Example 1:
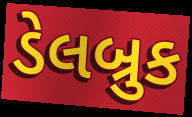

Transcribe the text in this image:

ડેલબ્રુક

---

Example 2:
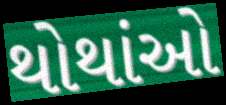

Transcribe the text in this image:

થોથાંઓ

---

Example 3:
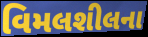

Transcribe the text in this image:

વિમલશીલના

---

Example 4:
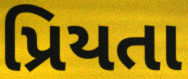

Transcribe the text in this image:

પ્રિયતા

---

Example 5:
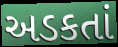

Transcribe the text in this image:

અડકતાં